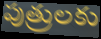
పుత్రులకు